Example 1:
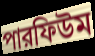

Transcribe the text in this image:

পারফিউম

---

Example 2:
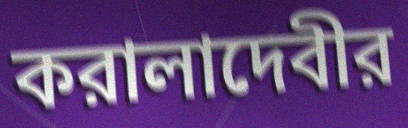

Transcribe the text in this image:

করালাদেবীর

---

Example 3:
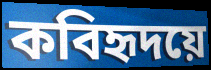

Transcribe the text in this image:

কবিহৃদয়ে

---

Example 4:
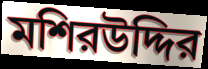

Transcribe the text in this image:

মশিরউদ্দির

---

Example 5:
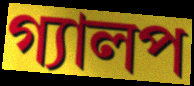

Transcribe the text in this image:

গ্যালপ